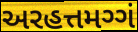
અરહત્તમગ્ગં